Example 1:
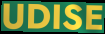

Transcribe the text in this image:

UDISE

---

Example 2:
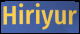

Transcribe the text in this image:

Hiriyur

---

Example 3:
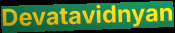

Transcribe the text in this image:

Devatavidnyan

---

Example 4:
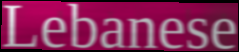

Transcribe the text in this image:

Lebanese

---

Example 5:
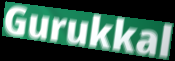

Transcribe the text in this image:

Gurukkal